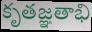
కృతజ్ఞతాభి